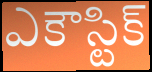
ఎకౌస్టిక్